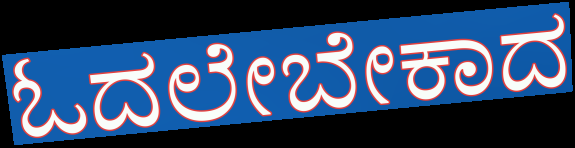
ಓದಲೇಬೇಕಾದ